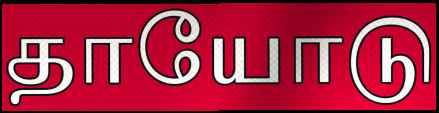
தாயோடு